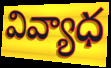
వివ్యాధ